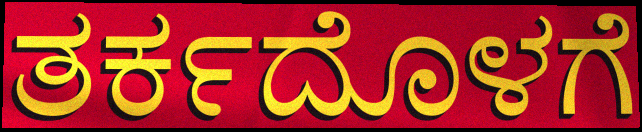
ತರ್ಕದೊಳಗೆ